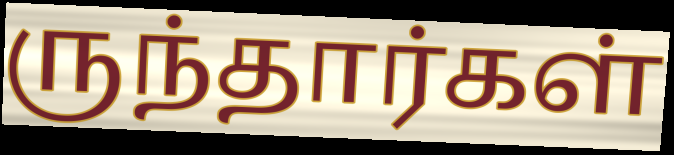
ருந்தார்கள்